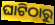
ଘାଟିଠାରୁ